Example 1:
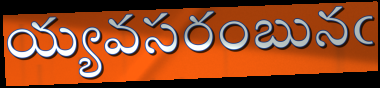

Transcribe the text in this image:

య్యవసరంబునఁ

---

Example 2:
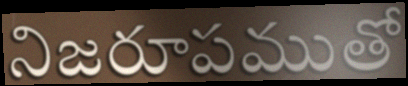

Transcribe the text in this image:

నిజరూపముతో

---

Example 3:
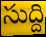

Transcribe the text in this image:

సుద్ది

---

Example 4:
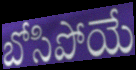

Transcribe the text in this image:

బోసిపోయే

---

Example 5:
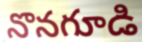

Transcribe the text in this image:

నొనగూడి